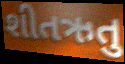
શીતઋતુ